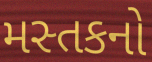
મસ્તકનો